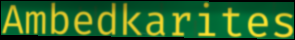
Ambedkarites